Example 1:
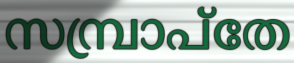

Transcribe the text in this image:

സമ്പ്രാപ്തേ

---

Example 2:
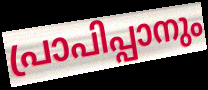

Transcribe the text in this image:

പ്രാപിപ്പാനും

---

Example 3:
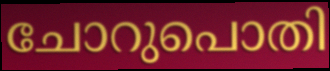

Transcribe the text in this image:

ചോറുപൊതി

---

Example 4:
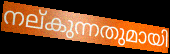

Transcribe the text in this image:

നല്കുന്നതുമായി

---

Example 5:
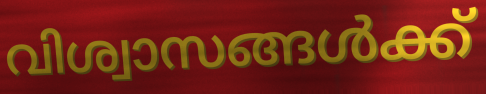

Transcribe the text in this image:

വിശ്വാസങ്ങൾക്ക്